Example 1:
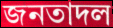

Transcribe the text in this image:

জনতাদল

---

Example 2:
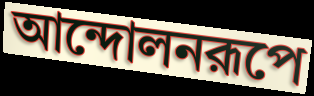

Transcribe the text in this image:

আন্দোলনরূপে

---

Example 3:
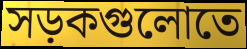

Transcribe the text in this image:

সড়কগুলোতে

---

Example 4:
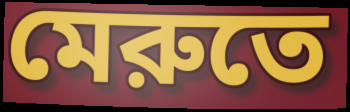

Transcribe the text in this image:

মেরুতে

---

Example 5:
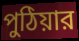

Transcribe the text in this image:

পুঠিয়ার